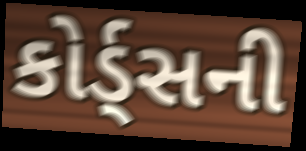
કોર્ડ્સની